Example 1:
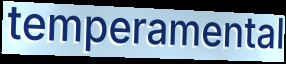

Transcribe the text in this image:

temperamental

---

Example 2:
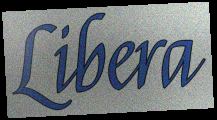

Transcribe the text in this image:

Libera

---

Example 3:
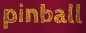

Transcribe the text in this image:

pinball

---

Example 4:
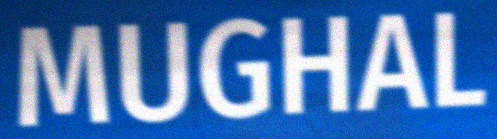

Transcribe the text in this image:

MUGHAL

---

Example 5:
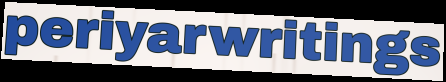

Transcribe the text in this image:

periyarwritings